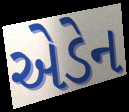
એડેન